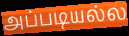
அப்படியல்ல